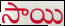
సాయి